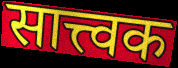
सात्त्वक